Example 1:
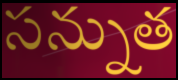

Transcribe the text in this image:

సన్నుత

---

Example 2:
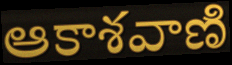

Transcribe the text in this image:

ఆకాశవాణి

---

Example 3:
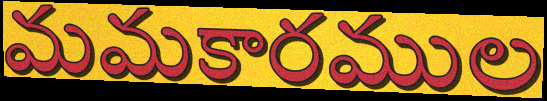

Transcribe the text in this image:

మమకారముల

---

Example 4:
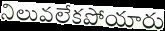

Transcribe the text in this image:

నిలువలేకపోయారు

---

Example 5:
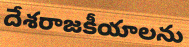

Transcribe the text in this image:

దేశరాజకీయాలను